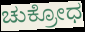
ಚುಕ್ರೋಧ